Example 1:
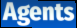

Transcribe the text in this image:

Agents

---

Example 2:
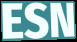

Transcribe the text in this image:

ESN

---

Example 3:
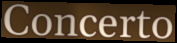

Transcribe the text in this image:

Concerto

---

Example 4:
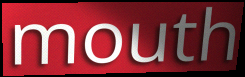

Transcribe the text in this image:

mouth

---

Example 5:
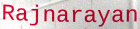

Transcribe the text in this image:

Rajnarayan